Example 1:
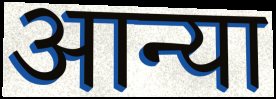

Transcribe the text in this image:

आन्या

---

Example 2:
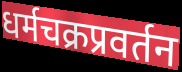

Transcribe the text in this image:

धर्मचक्रप्रवर्तन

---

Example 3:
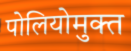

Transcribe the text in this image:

पोलियोमुक्त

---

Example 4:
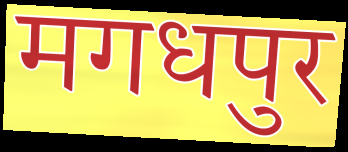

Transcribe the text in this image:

मगधपुर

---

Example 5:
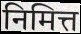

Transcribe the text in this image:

निमित्त